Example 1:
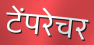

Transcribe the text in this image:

टेंपरेचर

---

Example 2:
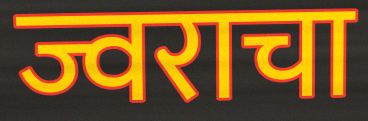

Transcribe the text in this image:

ज्वराचा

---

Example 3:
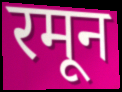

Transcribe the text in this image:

रमून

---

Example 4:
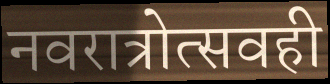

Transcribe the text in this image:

नवरात्रोत्सवही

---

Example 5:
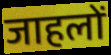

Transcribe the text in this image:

जाहलों